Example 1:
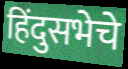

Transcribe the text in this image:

हिंदुसभेचे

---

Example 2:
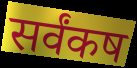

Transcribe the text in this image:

सर्वंकष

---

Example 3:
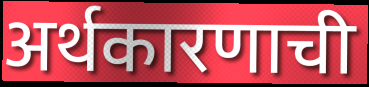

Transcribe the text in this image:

अर्थकारणाची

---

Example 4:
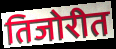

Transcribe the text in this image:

तिजोरीत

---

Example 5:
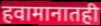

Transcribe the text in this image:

हवामानातही